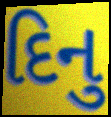
દિનુ